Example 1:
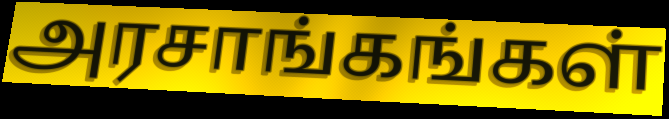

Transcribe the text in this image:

அரசாங்கங்கள்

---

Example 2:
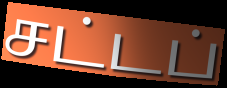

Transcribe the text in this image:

சட்டப்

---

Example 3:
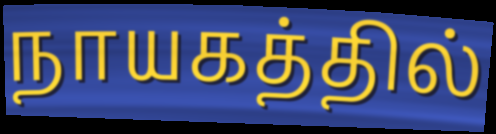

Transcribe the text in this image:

நாயகத்தில்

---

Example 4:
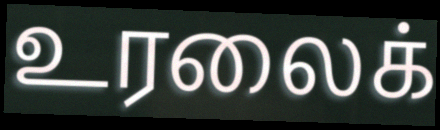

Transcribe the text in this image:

உரலைக்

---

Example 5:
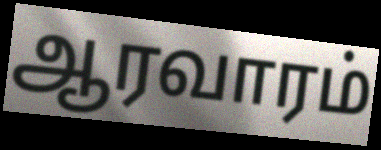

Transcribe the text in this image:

ஆரவாரம்